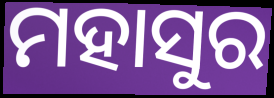
ମହାସୁର